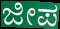
ಜೀಪ